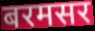
बरमसर